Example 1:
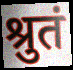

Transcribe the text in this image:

श्रुतं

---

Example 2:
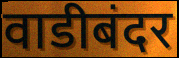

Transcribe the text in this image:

वाडीबंदर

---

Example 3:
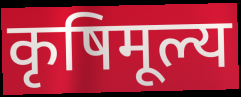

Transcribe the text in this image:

कृषिमूल्य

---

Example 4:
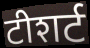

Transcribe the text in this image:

टीशर्ट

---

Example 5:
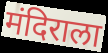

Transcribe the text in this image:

मंदिराला